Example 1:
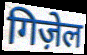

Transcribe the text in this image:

गिज़ेल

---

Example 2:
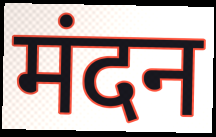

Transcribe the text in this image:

मंदन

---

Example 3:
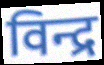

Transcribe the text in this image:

विन्द्र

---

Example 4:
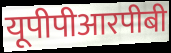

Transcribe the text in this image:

यूपीपीआरपीबी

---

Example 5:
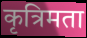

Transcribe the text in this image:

कृत्रिमता